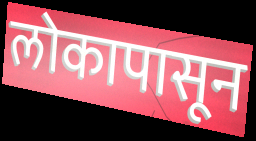
लोकापासून